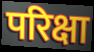
परिक्षा